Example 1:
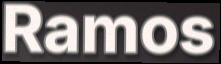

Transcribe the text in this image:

Ramos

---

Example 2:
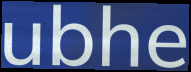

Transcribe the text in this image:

ubhe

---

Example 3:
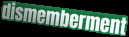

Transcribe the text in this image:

dismemberment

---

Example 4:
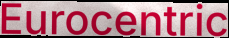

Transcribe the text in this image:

Eurocentric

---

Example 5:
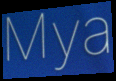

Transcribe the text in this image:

Mya